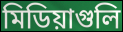
মিডিয়াগুলি